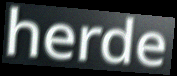
herde